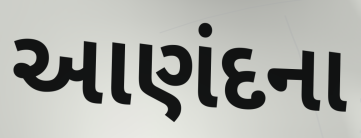
આણંદના